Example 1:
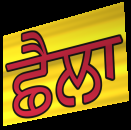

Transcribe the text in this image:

ਛੈਲਾ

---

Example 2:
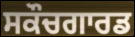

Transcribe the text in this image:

ਸਕੌਚਗਾਰਡ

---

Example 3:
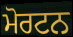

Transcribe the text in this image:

ਮੋਰਟਨ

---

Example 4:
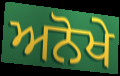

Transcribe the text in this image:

ਅਨੋਖੇ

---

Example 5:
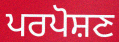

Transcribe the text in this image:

ਪਰਪੋਸ਼ਣ